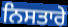
ਨਿਸਤਾਰੇ